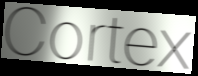
Cortex